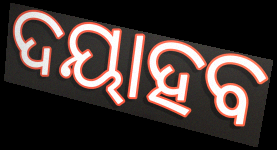
ଦୟାହବ